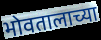
भोवतालाच्या